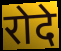
रोदे